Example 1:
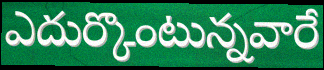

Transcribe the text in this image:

ఎదుర్కొంటున్నవారే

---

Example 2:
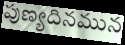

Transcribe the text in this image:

పుణ్యదినమున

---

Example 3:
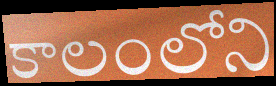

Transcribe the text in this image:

కాలంలోని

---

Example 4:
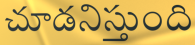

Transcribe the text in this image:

చూడనిస్తుంది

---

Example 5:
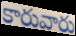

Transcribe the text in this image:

కారువారు